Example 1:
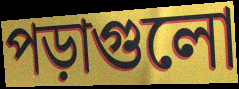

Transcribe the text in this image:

পড়াগুলো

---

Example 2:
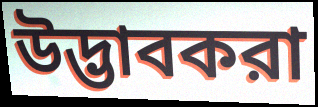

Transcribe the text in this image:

উদ্ভাবকরা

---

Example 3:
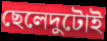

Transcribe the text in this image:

ছেলেদুটোই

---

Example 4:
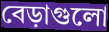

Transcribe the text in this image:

বেড়াগুলো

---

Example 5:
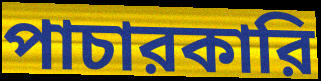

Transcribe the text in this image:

পাচারকারি